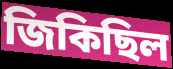
জিকিছিল